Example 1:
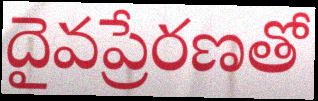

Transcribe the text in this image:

దైవప్రేరణతో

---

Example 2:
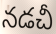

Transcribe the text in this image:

నడచీ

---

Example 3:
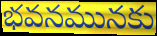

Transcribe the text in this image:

భవనమునకు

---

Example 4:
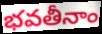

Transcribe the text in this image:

భవతీనాం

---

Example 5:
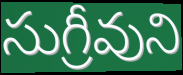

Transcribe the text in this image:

సుగ్రీవుని